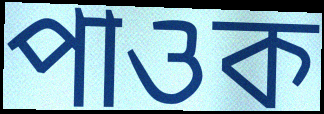
পাওক